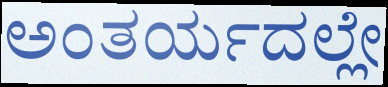
ಅಂತರ್ಯದಲ್ಲೇ